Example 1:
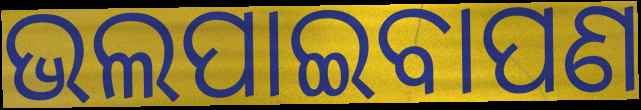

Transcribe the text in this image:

ଭଲପାଇବାପଣ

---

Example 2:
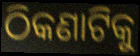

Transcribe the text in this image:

ଠିକଣାଟିକୁ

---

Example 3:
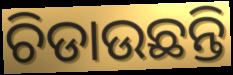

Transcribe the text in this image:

ଚିଡାଉଛନ୍ତି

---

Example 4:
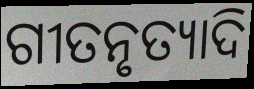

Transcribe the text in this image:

ଗୀତନୃତ୍ୟାଦି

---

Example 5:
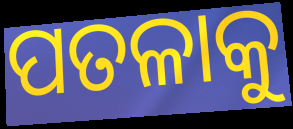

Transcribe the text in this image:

ପତଳାକୁ